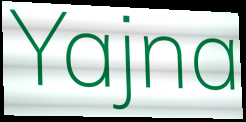
Yajna